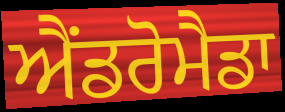
ਐਂਡਰੋਮੈਡਾ